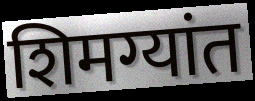
शिमग्यांत